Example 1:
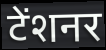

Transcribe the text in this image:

टेंशनर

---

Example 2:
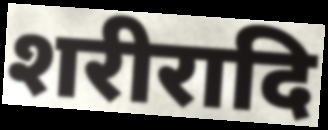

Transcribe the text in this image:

शरीरादि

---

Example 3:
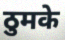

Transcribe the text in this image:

ठुमके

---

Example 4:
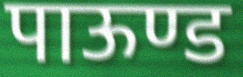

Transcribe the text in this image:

पाऊण्ड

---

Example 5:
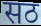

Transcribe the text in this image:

सठ